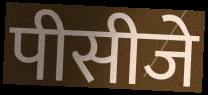
पीसीजे